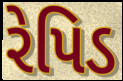
રેપિડ